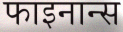
फाइनान्स